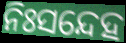
ନିଃସନ୍ଦେହ